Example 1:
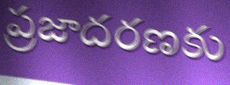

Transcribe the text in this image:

ప్రజాదరణకు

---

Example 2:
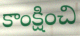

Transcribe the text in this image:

కాంక్షించి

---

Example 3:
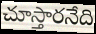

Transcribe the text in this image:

చూస్తారనేది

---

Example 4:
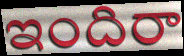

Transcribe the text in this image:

ఇందిరా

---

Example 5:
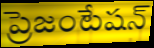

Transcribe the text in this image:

ప్రెజంటేషన్